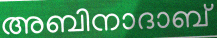
അബിനാദാബ്